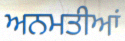
ਅਨਮਤੀਆਂ